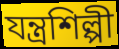
যন্ত্রশিল্পী